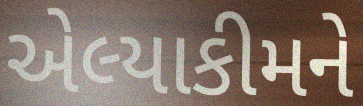
એલ્યાકીમને